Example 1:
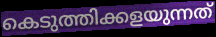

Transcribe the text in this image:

കെടുത്തിക്കളയുന്നത്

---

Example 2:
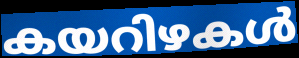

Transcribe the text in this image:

കയറിഴകൾ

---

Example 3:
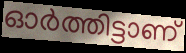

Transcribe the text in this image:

ഓർത്തിട്ടാണ്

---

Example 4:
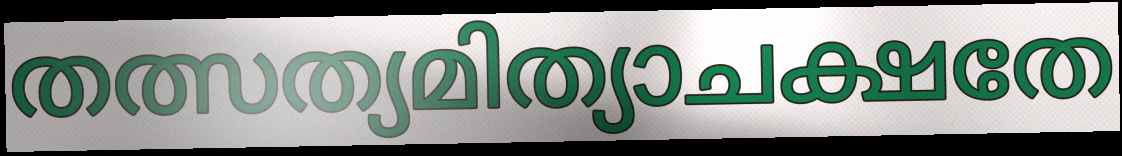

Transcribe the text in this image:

തത്സത്യമിത്യാചക്ഷതേ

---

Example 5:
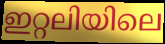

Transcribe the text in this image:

ഇറ്റലിയിലെ